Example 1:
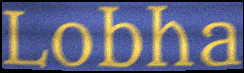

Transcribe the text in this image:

Lobha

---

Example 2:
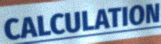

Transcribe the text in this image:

CALCULATION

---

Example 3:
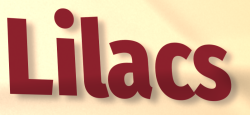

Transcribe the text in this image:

Lilacs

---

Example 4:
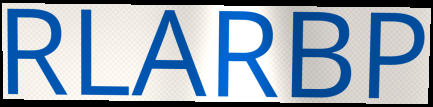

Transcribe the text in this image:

RLARBP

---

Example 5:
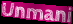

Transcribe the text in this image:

Unmani